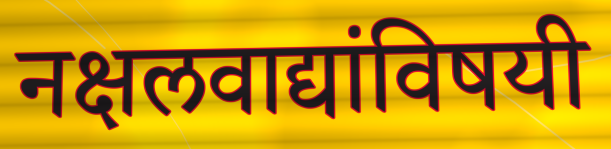
नक्षलवाद्यांविषयी